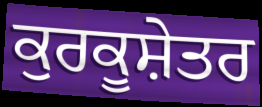
ਕੁਰਕੂਸ਼ੇਤਰ